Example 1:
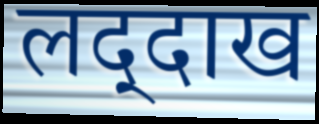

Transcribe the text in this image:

लद्‌दाख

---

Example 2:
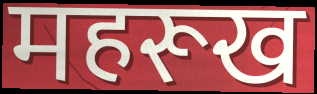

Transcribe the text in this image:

महरूख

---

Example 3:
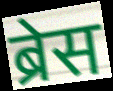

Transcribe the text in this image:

ब्रेस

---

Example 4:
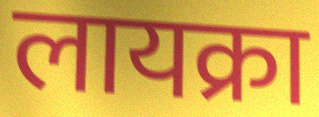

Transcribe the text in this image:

लायक्रा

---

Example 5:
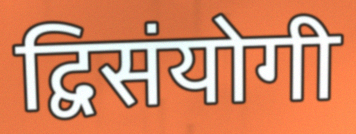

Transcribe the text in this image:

द्विसंयोगी